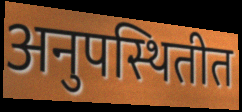
अनुपस्थितीत